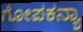
ಗೋಪಕನ್ಯಾ